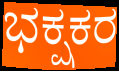
ಭಕ್ಷಕರ